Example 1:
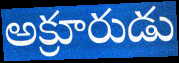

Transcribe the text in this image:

అక్రూరుడు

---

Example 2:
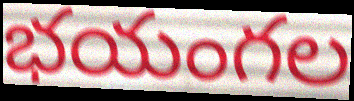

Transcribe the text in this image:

భయంగల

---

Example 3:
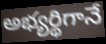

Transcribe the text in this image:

అభ్యర్థిగానే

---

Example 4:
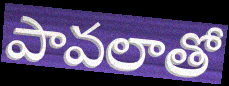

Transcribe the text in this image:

పావలాతో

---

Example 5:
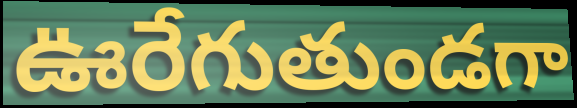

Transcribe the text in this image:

ఊరేగుతుండగా